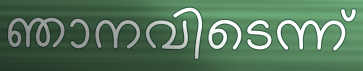
ഞാനവിടെന്ന്